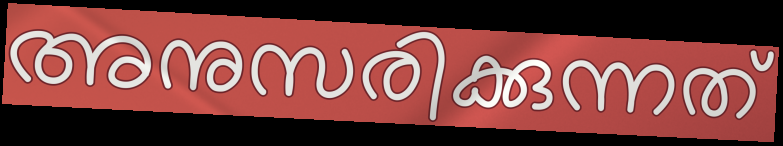
അനുസരിക്കുന്നത്